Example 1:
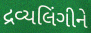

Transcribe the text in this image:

દ્રવ્યલિંગીને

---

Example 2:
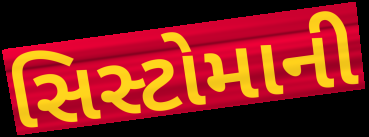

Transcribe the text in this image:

સિસ્ટોમાની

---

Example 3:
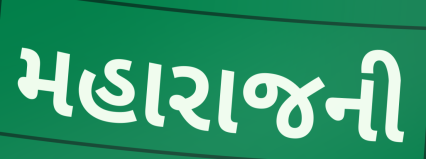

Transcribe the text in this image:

મહારાજની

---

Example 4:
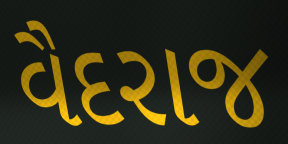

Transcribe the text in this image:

વૈદરાજ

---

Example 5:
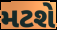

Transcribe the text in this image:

મટશે